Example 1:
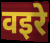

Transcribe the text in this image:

वइरे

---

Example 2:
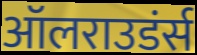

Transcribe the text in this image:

ऑलराउडंर्स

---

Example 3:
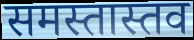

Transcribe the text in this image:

समस्तास्तव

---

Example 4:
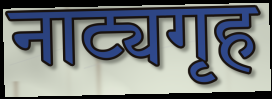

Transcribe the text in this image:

नाट्यगृह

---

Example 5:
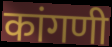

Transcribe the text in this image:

कांगणी